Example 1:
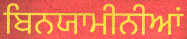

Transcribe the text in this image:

ਬਿਨਯਾਮੀਨੀਆਂ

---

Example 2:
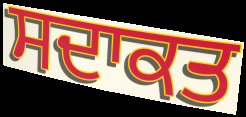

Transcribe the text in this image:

ਸਦਾਕਤ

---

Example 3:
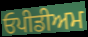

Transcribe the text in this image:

ਓਪੀਡੀਅਮ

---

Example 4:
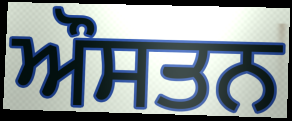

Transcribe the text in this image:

ਔਸਤਨ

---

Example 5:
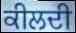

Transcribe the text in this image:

ਕੀਲਦੀ